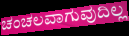
ಚಂಚಲವಾಗುವುದಿಲ್ಲ